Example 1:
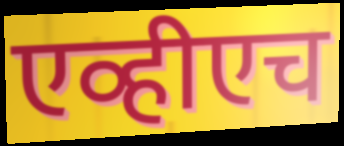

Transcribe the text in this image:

एव्हीएच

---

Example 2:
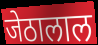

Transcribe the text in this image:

जेठालाल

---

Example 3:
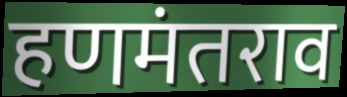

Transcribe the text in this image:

हणमंतराव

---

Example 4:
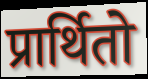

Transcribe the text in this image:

प्रार्थितो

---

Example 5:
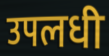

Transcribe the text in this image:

उपलधी